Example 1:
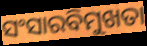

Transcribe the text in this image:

ସଂସାରବିମୁଖତା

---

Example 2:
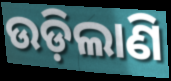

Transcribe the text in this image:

ଉଡ଼ିଲାଣି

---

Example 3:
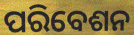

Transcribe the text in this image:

ପରିବେଶନ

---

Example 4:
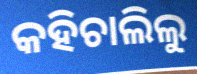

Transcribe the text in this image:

କହିଚାଲିଲୁ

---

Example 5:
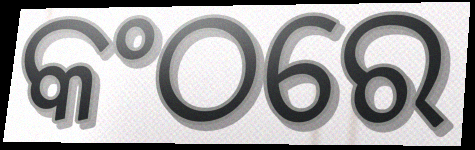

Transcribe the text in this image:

କଂଠରେ